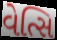
વેત્સિ